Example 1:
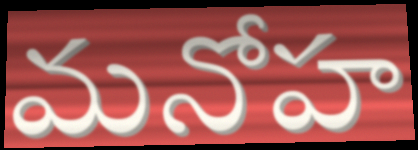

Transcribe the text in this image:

మనోహ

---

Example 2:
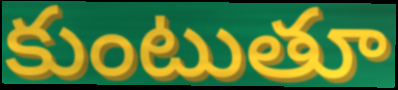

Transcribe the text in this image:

కుంటుతూ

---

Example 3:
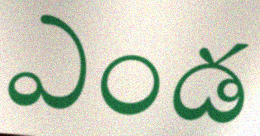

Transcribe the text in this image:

ఎండ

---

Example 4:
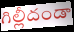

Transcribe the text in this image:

గిల్లీదండా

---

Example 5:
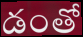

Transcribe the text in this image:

డంతో